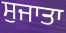
ਸੁਜਾਤਾ